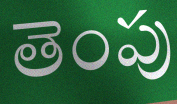
తెంపు